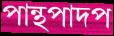
পান্থপাদপ